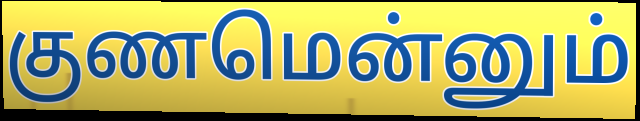
குணமென்னும்